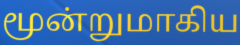
மூன்றுமாகிய